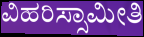
ವಿಹರಿಸ್ಸಾಮೀತಿ